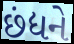
છંદ્યને